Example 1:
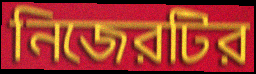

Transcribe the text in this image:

নিজেরটির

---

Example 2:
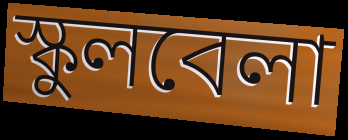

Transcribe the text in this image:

স্কুলবেলা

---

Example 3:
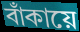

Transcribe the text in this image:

বাঁকায়ে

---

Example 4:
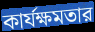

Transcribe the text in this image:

কার্যক্ষমতার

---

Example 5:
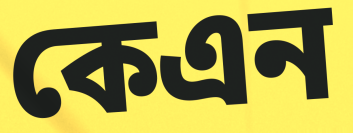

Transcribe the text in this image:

কেএন